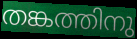
തങ്കത്തിനു